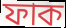
ফাক